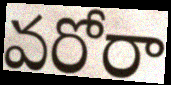
వరోరా